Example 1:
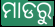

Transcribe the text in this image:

ମାଡରୁ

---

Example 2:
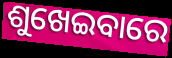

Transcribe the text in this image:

ଶୁଖେଇବାରେ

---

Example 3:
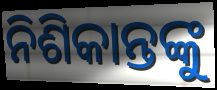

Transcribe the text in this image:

ନିଶିକାନ୍ତଙ୍କୁ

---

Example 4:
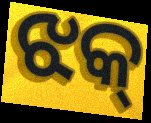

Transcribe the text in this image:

ଝକ୍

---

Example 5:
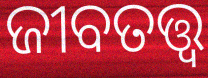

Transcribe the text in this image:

ଜୀବତତ୍ତ୍ୱ